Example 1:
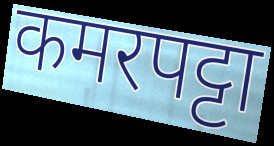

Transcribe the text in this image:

कमरपट्टा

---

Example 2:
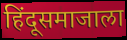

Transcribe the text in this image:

हिंदूसमाजाला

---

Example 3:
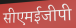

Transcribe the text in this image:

सीएमईजीपी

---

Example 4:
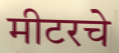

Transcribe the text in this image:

मीटरचे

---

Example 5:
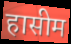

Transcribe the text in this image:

हासीम